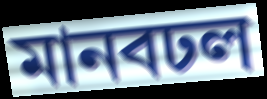
মানবঢল